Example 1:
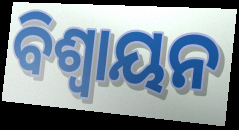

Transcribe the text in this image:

ବିଶ୍ୱାୟନ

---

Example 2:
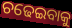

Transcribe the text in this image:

ଚଢେଇବାକୁ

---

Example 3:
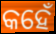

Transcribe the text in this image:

କହେଁ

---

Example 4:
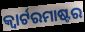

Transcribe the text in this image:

କ୍ୱାର୍ଟରମାଷ୍ଟର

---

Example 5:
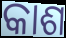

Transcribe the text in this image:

କାଶ